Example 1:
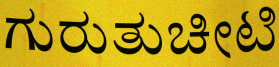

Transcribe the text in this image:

ಗುರುತುಚೀಟಿ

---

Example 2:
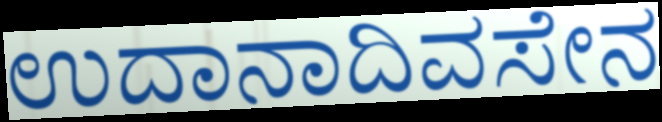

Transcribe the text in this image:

ಉದಾನಾದಿವಸೇನ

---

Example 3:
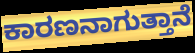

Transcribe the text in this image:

ಕಾರಣನಾಗುತ್ತಾನೆ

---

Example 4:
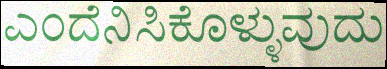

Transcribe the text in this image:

ಎಂದೆನಿಸಿಕೊಳ್ಳುವುದು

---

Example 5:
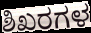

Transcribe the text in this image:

ಶಿಖರಗಳ